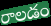
రాలడం